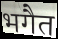
भगैत